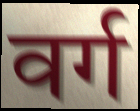
वर्ग